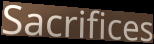
Sacrifices